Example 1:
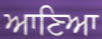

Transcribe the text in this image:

ਆਣਿਆ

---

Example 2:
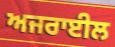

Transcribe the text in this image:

ਅਜਰਾਈਲ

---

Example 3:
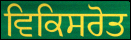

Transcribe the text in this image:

ਵਿਕਿਸਰੋਤ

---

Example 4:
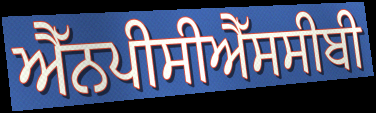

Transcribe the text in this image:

ਐੱਨਪੀਸੀਐੱਸਸੀਬੀ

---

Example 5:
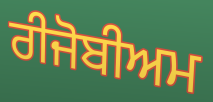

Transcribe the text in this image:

ਰੀਜੋਬੀਅਮ